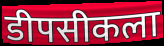
डीपसीकला